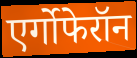
एर्गोफेरॉन